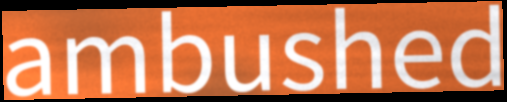
ambushed